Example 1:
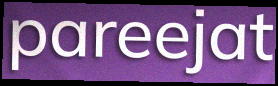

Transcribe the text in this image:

pareejat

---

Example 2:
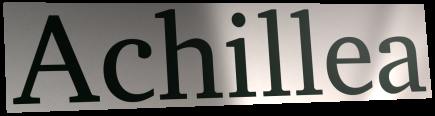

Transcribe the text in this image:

Achillea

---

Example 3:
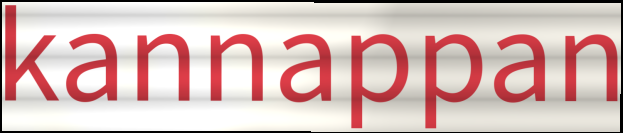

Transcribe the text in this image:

kannappan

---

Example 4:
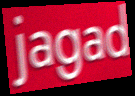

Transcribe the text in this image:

jagad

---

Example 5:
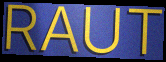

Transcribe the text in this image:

RAUT